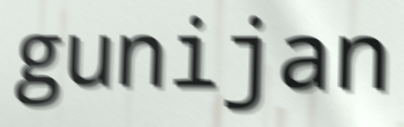
gunijan